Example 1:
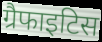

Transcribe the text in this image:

ग्रैफाइटिस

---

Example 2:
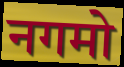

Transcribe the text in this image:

नगमो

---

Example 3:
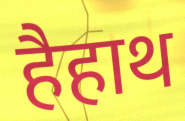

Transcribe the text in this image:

हैहाथ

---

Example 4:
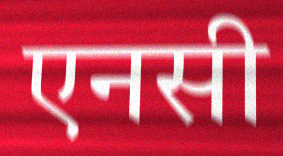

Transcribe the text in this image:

एनसी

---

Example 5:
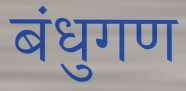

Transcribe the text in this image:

बंधुगण